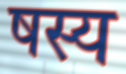
षस्य